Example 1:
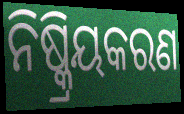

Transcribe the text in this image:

ନିଷ୍କ୍ରିୟକରଣ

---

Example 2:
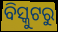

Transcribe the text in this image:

ବିସ୍କୁଟରୁ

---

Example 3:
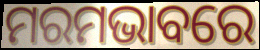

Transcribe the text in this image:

ମରମଭାବରେ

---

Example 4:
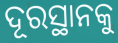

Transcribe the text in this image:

ଦୂରସ୍ଥାନକୁ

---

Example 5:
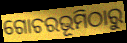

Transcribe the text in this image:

ଗୋଚରଭୂମିଠାରୁ